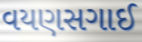
વયણસગાઈ